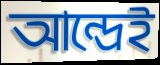
আন্দ্রেই